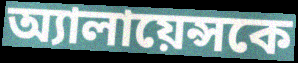
অ্যালায়েন্সকে